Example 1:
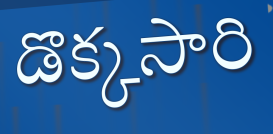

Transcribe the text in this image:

డొక్కసారి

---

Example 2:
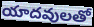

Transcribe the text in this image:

యాదవులతో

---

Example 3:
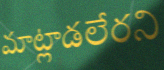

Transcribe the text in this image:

మాట్లాడలేరని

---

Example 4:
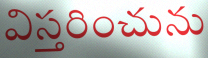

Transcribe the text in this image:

విస్తరించును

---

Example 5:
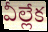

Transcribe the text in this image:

వీల్లేక